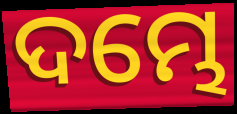
ଦମ୍ଭେ